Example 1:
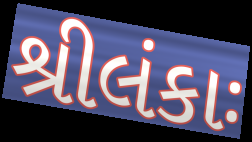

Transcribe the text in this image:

શ્રીલંકાઃ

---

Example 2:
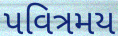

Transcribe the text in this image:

પવિત્રમય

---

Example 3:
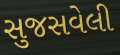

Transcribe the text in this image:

સુજસવેલી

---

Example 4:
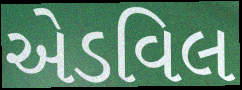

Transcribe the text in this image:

એડવિલ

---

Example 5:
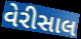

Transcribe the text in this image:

વેરીસાલ